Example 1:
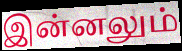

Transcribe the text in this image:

இன்னலும்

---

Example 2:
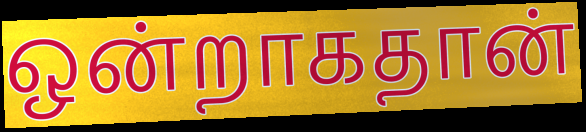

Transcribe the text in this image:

ஒன்றாகதான்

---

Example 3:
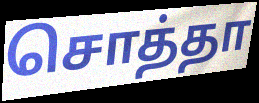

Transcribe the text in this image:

சொத்தா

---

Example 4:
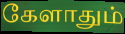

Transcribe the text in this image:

கேளாதும்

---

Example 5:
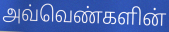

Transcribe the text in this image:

அவ்வெண்களின்